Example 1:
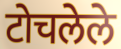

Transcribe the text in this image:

टोचलेले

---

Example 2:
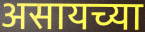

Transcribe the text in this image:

असायच्या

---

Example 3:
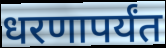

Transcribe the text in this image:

धरणापर्यंत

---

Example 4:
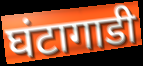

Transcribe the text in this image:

घंटागाडी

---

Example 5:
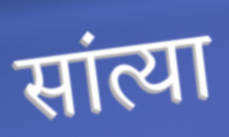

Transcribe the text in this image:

सांत्या